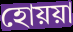
হোয়য়া